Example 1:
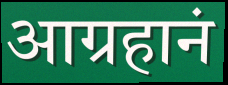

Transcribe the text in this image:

आग्रहानं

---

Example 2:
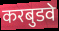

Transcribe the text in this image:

करबुडवे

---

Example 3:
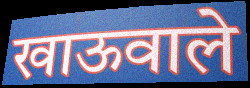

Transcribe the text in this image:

खाऊवाले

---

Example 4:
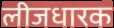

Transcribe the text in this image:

लीजधारक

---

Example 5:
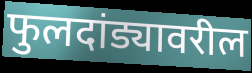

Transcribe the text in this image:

फुलदांड्यावरील